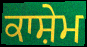
ਕਾਸ਼ੇਮ